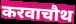
करवाचौथ